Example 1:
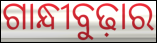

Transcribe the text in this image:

ଗାନ୍ଧୀବୁଢ଼ାର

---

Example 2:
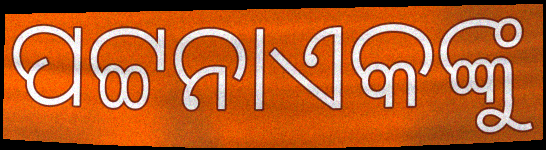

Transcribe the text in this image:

ପଟ୍ଟନାଏକଙ୍କୁ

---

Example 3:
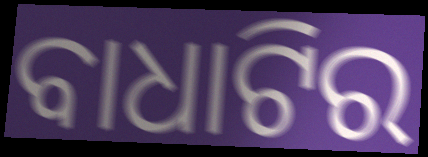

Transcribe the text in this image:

ବାଧାଟିର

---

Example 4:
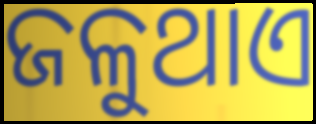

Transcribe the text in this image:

ଜଳୁଥାଏ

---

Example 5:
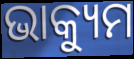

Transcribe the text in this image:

ଭାକ୍ୟୁମ